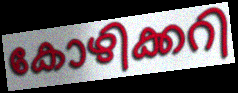
കോഴിക്കറി